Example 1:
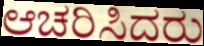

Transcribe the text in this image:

ಆಚರಿಸಿದರು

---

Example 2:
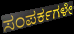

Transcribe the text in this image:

ಸಂಪರ್ಕಗಳೇ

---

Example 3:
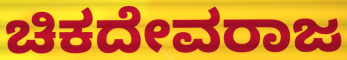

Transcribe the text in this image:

ಚಿಕದೇವರಾಜ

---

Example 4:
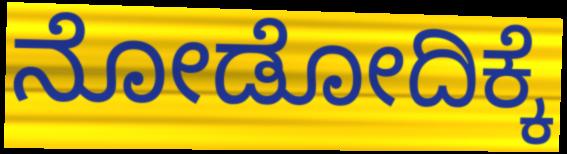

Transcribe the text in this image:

ನೋಡೋದಿಕ್ಕೆ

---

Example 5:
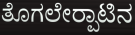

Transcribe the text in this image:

ತೊಗಲೇರ‍್ಪಾಟಿನ